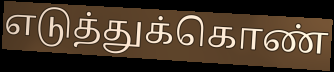
எடுத்துக்கொண்